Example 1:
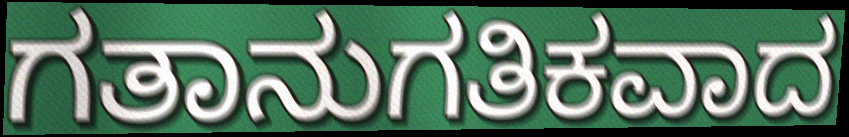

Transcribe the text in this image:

ಗತಾನುಗತಿಕವಾದ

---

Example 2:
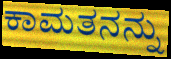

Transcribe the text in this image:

ಕಾಮತನನ್ನು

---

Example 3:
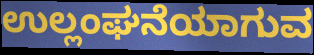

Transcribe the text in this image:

ಉಲ್ಲಂಘನೆಯಾಗುವ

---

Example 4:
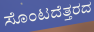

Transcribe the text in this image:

ಸೊಂಟದೆತ್ತರದ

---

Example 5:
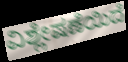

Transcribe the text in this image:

ವಿಶ್ಲೇಷಣೆಯಿದೆ